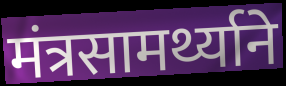
मंत्रसामर्थ्याने